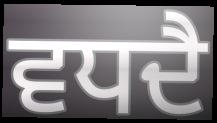
ਵਧਦੈ